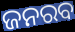
ଜନରବ